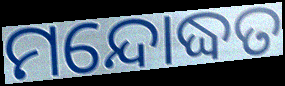
ମନ୍ଦୋଦ୍ଧତ